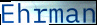
Ehrman